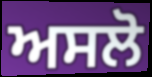
ਅਸਲੋ